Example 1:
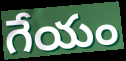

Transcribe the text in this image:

గేయం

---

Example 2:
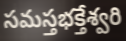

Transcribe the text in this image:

సమస్తభక్తేశ్వరి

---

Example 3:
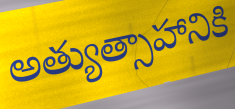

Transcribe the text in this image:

అత్యుత్సాహానికి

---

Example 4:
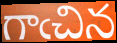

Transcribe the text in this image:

గాఁచిన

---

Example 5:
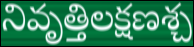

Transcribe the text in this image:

నివృత్తిలక్షణశ్చ